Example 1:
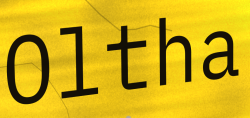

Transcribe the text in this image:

Oltha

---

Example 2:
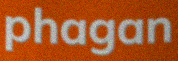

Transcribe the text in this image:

phagan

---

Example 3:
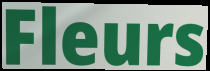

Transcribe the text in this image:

Fleurs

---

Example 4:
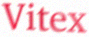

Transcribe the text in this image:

Vitex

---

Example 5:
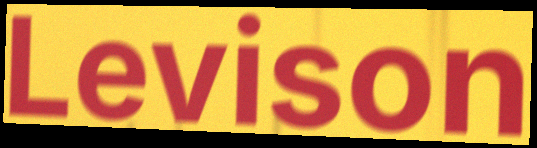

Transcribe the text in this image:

Levison